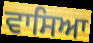
ਵਾਸਿਆ